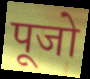
पूजो